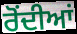
ਰੋਂਦੀਆਂ